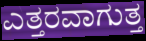
ಎತ್ತರವಾಗುತ್ತ